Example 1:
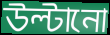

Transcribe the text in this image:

উল্টানো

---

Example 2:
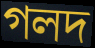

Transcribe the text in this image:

গলদ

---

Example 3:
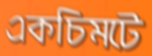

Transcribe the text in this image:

একচিমটে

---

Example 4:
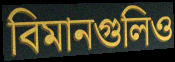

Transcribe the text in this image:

বিমানগুলিও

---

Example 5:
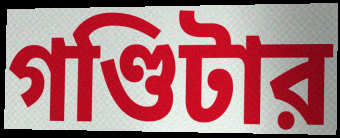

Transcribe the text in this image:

গণ্ডিটার